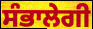
ਸੰਭਾਲੇਗੀ